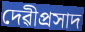
দেৱীপ্ৰসাদ